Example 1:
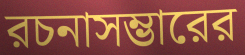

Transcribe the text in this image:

রচনাসম্ভারের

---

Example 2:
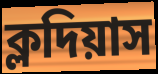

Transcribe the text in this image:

ক্লদিয়াস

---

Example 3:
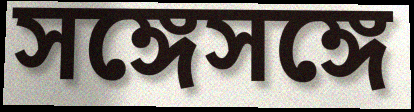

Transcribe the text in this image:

সঙ্গেসঙ্গে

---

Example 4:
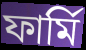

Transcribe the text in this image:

ফার্মি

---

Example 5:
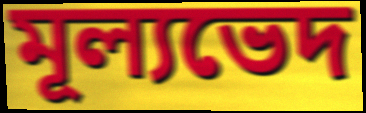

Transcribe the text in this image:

মূল্যভেদ